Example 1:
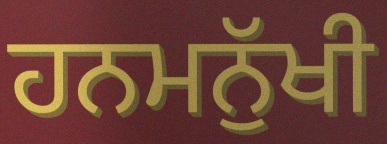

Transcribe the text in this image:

ਹਨਮਨੁੱਖੀ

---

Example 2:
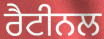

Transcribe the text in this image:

ਰੈਟੀਨਲ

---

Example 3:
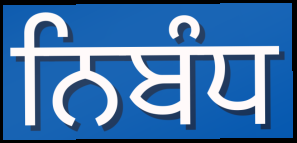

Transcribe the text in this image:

ਨਿਬੰਧ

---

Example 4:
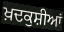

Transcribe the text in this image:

ਖ਼ਦਕੁਸ਼ੀਆਂ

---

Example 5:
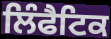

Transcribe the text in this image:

ਲਿੰਫੈਟਿਕ